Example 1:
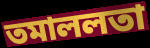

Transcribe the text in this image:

তমাললতা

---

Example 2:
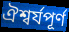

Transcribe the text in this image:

ঐশ্বর্যপূর্ণ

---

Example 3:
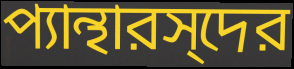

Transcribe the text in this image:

প্যান্থারস্‌দের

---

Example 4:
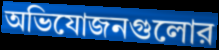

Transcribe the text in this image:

অভিযোজনগুলোর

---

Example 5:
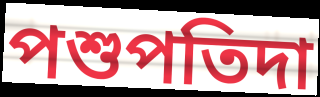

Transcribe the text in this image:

পশুপতিদা